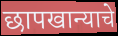
छापखान्याचे